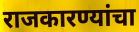
राजकारण्यांचा